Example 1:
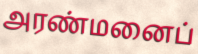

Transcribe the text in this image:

அரண்மனைப்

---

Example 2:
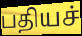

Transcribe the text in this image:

பதியச்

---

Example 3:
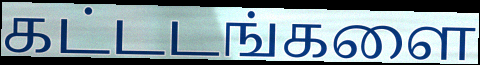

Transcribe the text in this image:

கட்டடங்களை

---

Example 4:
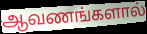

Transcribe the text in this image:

ஆவணங்களால்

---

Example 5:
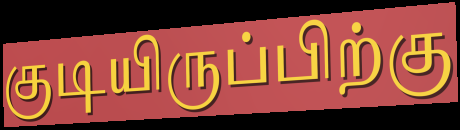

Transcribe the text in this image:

குடியிருப்பிற்கு